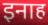
इनाह